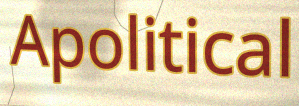
Apolitical